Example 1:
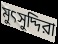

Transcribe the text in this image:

মুৎসুদ্দিরা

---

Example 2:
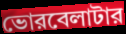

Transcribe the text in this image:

ভোরবেলাটার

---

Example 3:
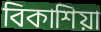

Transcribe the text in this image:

বিকাশিয়া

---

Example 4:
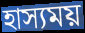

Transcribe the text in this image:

হাস্যময়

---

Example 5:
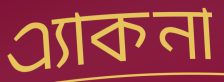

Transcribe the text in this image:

এ্যাকনা